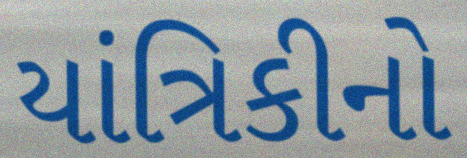
યાંત્રિકીનો